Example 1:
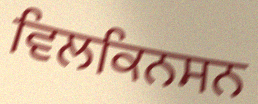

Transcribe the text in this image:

ਵਿਲਕਿਨਸਨ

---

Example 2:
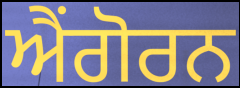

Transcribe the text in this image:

ਐਂਗੋਰਨ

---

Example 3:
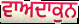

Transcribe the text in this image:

ਵਾਅਦਾਕੁਨ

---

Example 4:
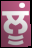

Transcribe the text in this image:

ਲੂਂ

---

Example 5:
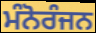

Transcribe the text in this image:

ਮੰਨੋਰੰਜਨ